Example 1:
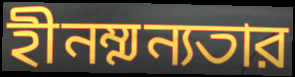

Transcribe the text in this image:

হীনম্মন্যতার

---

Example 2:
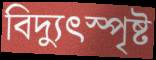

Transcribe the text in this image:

বিদ্যুৎস্পৃষ্ট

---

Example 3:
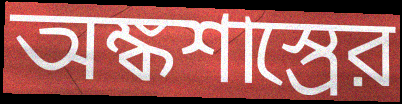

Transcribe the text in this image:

অঙ্কশাস্ত্রের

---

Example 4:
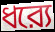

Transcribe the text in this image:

ধর‍্যে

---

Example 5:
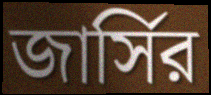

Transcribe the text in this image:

জার্সির